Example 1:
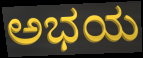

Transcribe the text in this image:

ಅಭಯ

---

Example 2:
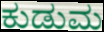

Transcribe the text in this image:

ಕುಡುಮ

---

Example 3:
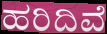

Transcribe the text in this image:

ಹರಿದಿವೆ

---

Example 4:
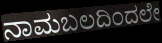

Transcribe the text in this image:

ನಾಮಬಲದಿಂದಲೇ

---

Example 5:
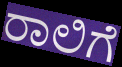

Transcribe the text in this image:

ರಾಲಿಗೆ